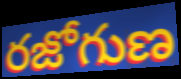
రజోగుణ